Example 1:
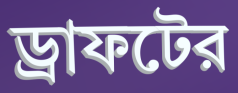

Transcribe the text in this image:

ড্রাফটের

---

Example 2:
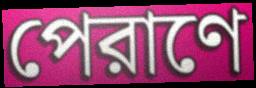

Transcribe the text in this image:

পেরাণে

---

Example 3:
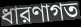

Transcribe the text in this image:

ধারণাগত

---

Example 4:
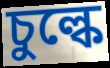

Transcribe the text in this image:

চুল্কে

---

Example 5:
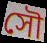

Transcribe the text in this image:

সৌ